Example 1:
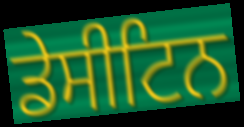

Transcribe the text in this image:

ਡੇਸੀਟਿਨ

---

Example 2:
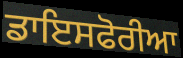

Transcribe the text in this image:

ਡਾਇਸਫੋਰੀਆ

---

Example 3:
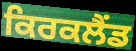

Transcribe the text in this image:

ਕਿਰਕਲੈਂਡ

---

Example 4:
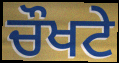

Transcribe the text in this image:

ਚੌਖਟੇ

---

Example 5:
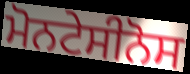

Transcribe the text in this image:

ਮੋਨਟੇਸੀਨੋਸ